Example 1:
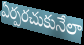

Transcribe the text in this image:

ఏర్పరచుకునేలా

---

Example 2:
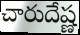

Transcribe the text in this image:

చారుదేష్ణ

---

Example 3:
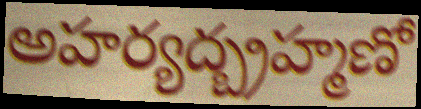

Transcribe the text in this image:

అహర్యద్బ్రహ్మణో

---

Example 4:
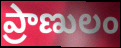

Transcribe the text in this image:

ప్రాణులం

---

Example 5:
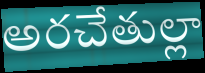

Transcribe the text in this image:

అరచేతుల్లా